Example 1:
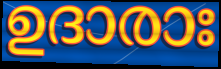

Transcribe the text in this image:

ഉദാരാഃ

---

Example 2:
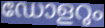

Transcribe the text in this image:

ഡോളറും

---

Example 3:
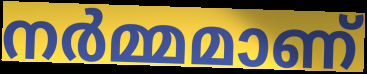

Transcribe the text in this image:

നർമ്മമാണ്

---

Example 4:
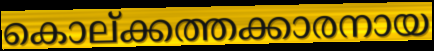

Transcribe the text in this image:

കൊല്ക്കത്തക്കാരനായ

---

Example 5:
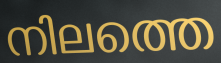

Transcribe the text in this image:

നിലത്തെ